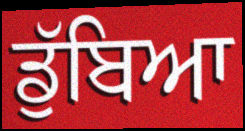
ਡੁੱਬਿਆ